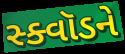
સ્ક્વૉડને